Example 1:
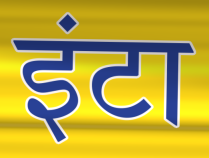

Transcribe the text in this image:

इंटा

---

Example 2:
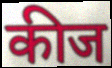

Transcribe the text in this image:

कीज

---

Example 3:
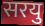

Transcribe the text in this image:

सरयु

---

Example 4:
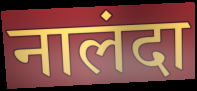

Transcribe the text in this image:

नालंदा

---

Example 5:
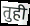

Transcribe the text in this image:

तुही